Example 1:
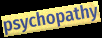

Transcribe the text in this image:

psychopathy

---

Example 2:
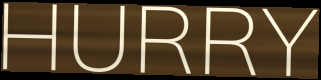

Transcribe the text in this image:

HURRY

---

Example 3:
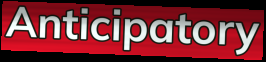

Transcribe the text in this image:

Anticipatory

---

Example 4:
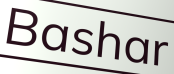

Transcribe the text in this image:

Bashar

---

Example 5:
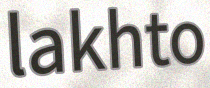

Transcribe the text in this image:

lakhto